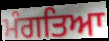
ਮੰਗਤਿਆ